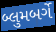
બ્લુમબર્ગે